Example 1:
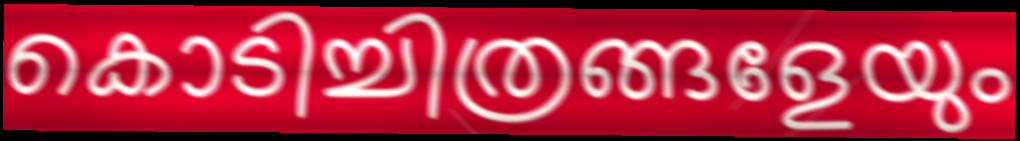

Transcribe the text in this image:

കൊടിച്ചിത്രങ്ങളേയും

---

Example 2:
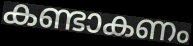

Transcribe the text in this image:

കണ്ടാകണം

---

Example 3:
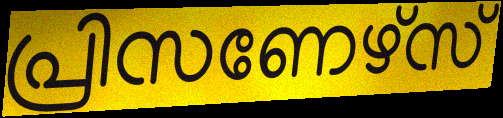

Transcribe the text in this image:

പ്രിസണേഴ്സ്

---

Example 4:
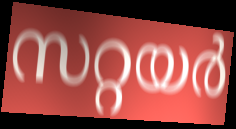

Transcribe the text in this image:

സറ്റയർ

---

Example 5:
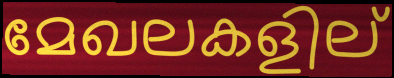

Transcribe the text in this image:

മേഖലകളില്